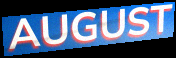
AUGUST